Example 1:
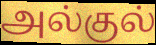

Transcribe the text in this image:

அல்குல்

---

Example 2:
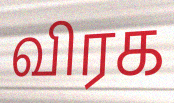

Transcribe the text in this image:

விரக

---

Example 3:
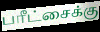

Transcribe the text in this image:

பரீட்சைக்கு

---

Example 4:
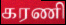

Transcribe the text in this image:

கரணி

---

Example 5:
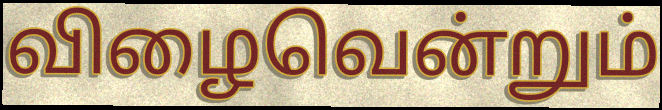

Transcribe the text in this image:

விழைவென்றும்